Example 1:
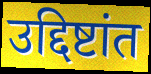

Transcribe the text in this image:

उद्दिष्टांत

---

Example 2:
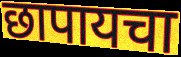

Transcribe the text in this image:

छापायचा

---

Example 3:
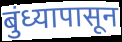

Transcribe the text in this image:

बुंध्यापासून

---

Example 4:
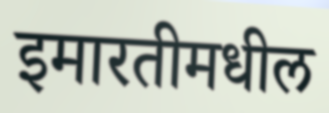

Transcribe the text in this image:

इमारतीमधील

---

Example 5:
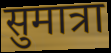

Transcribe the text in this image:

सुमात्रा